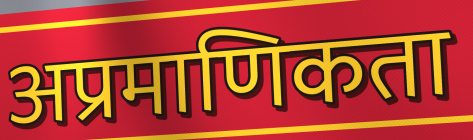
अप्रमाणिकता